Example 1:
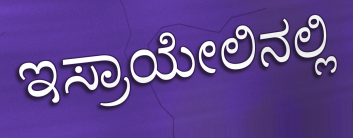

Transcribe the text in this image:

ಇಸ್ರಾಯೇಲಿನಲ್ಲಿ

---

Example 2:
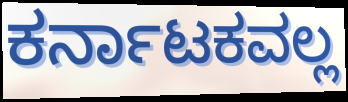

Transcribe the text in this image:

ಕರ್ನಾಟಕವಲ್ಲ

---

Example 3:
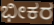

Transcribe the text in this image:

ಭೀಕರ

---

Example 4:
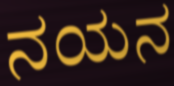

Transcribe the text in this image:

ನಯನ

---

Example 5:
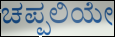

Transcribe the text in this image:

ಚಪ್ಪಲಿಯೇ